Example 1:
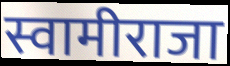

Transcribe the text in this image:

स्वामीराजा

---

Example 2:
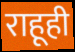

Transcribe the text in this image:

राहूही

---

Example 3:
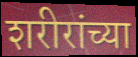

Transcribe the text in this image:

शरीरांच्या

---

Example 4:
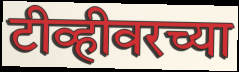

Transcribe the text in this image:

टीव्हीवरच्या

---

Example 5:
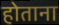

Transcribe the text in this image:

होताना